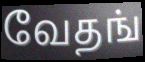
வேதங்